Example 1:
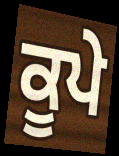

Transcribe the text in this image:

ਕੂਪੇ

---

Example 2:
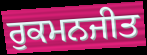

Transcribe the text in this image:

ਰੁਕਮਨਜੀਤ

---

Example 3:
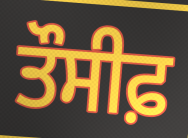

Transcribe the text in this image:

ਤੌਸੀਫ਼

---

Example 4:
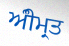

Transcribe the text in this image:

ਅੰੀਮ੍ਰਤ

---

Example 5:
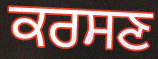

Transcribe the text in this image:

ਕਰਸਣ